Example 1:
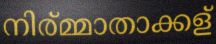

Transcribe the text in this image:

നിര്മ്മാതാക്കള്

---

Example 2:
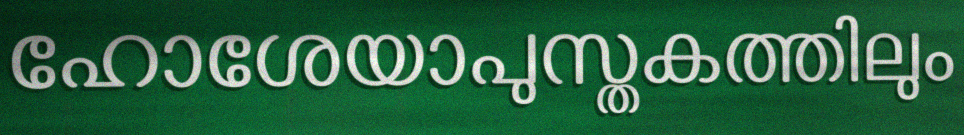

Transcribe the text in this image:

ഹോശേയാപുസ്തകത്തിലും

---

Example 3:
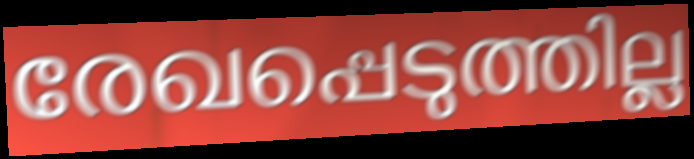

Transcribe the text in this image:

രേഖപ്പെടുത്തില്ല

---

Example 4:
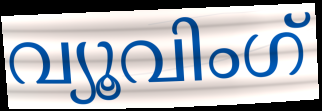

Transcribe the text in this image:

വ്യൂവിംഗ്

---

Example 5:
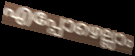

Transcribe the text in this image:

എപ്പോഴെല്ലാം